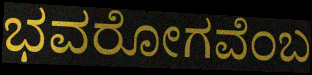
ಭವರೋಗವೆಂಬ